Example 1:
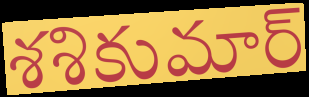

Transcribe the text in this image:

శశికుమార్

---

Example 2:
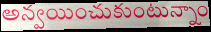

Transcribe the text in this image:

అన్వయించుకుంటున్నాం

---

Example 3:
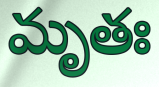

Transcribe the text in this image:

మృతః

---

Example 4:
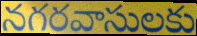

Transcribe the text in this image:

నగరవాసులకు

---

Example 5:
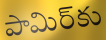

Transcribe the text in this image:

పామిర్‌కు